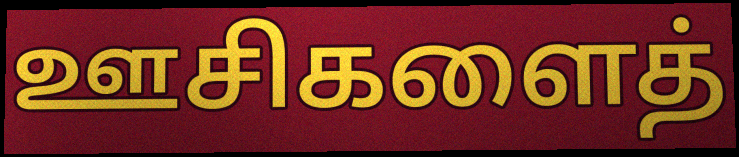
ஊசிகளைத்